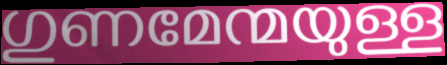
ഗുണമേന്മയുള്ള